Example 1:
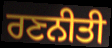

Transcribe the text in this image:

ਰਣਨੀਤੀ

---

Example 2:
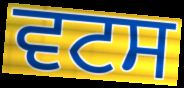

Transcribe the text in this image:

ਵਟਸ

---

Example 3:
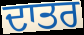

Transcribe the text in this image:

ਦਾਤਰ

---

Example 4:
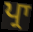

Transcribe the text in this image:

ਪ੍ਰਾ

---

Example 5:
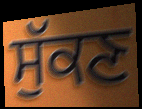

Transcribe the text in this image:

ਸੁੱਕਣ